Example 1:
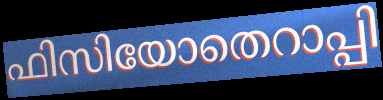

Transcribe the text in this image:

ഫിസിയോതെറാപ്പി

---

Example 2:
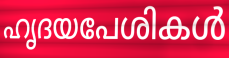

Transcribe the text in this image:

ഹൃദയപേശികൾ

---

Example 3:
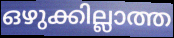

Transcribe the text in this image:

ഒഴുക്കില്ലാത്ത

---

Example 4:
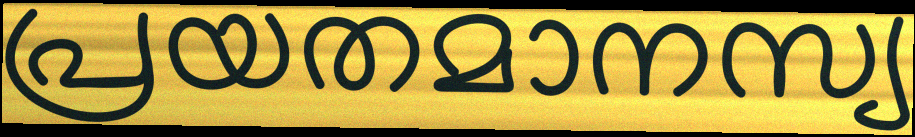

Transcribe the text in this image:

പ്രയതമാനസ്യ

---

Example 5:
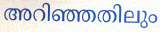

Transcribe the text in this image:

അറിഞ്ഞതിലും